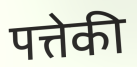
पत्तेकी